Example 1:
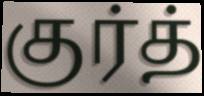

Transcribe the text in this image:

குர்த்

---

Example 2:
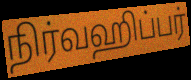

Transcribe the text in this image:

நிர்வஹிப்பர்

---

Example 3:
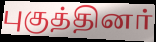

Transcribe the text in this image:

புகுத்தினர்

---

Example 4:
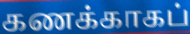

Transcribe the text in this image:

கணக்காகப்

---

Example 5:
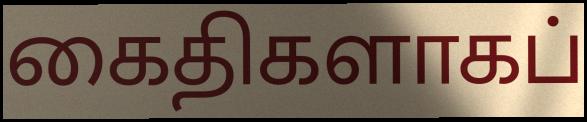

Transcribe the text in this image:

கைதிகளாகப்